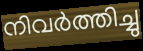
നിവർത്തിച്ചു